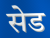
सेड